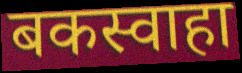
बकस्वाहा